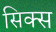
सिक्स